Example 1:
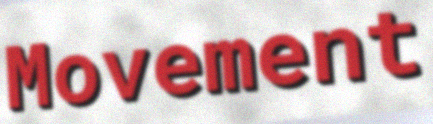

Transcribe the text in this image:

Movement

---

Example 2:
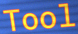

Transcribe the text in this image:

Tool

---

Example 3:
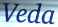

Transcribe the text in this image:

Veda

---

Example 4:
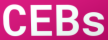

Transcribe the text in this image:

CEBs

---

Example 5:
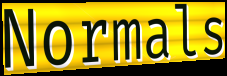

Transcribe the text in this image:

Normals